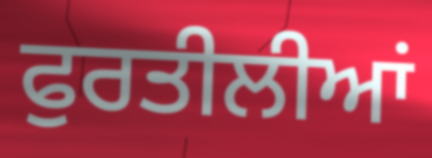
ਫੁਰਤੀਲੀਆਂ